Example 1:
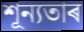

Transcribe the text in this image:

শূন্যতাৰ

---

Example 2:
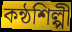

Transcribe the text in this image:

কন্ঠশিল্পী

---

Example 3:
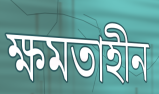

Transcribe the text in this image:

ক্ষমতাহীন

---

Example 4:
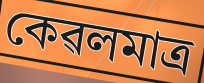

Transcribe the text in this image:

কেৱলমাত্ৰ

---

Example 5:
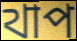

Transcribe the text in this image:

থাপ